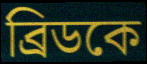
ব্রিডকে